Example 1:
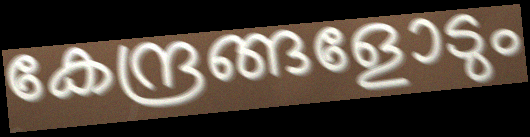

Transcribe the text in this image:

കേന്ദ്രങ്ങളോടും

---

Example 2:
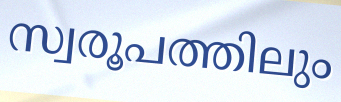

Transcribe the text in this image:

സ്വരൂപത്തിലും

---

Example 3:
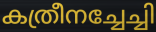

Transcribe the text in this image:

കത്രീനച്ചേച്ചി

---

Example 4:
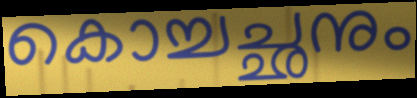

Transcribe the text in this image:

കൊച്ചച്ഛനും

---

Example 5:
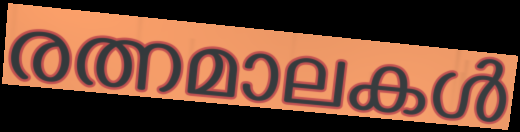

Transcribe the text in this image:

രത്നമാലകൾ